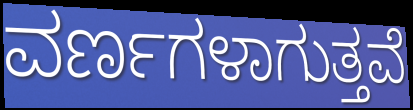
ವರ್ಣಗಳಾಗುತ್ತವೆ